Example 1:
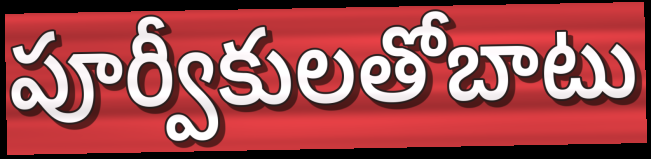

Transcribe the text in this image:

పూర్వీకులతోబాటు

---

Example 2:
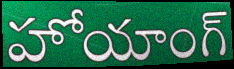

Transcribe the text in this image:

హోయాంగ్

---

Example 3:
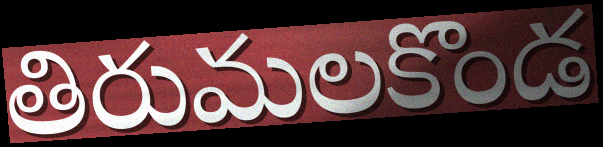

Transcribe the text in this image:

తిరుమలకొండ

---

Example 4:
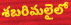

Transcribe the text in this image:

శబరిమలైలో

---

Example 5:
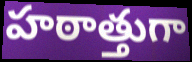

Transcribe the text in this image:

హఠాత్తుగా